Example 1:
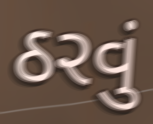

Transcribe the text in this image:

ઠરવું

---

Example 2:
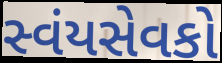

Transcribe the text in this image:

સ્વંયસેવકો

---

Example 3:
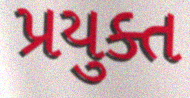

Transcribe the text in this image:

પ્રયુક્ત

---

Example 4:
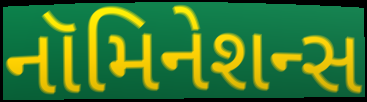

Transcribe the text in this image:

નૉમિનેશન્સ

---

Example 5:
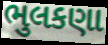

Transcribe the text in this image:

ભુલકણા